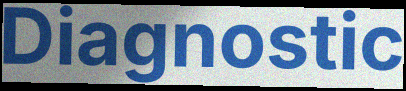
Diagnostic